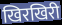
खिरखिरी